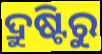
ଦ୍ରୁଷ୍ଟିରୁ